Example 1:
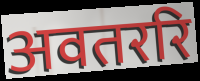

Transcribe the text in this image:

अवतररि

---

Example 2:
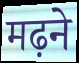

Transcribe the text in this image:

मढ़ने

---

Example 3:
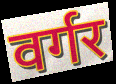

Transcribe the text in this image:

वर्गर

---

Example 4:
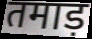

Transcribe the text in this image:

तमाड़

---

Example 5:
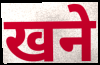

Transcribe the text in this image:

खने